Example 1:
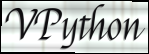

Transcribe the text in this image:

VPython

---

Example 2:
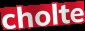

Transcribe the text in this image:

cholte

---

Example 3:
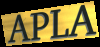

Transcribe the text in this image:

APLA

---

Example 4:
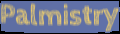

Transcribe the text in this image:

Palmistry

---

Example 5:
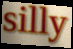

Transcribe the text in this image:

silly